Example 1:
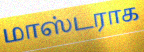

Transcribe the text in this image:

மாஸ்டராக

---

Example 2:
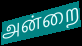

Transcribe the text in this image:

அன்றை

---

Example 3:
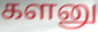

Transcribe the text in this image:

களனு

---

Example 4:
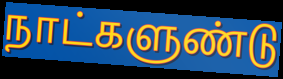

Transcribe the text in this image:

நாட்களுண்டு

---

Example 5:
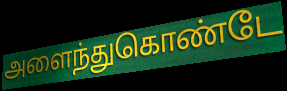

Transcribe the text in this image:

அளைந்துகொண்டே